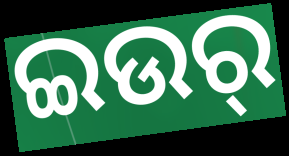
ଇଉର୍